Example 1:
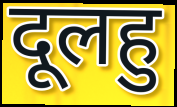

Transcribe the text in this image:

दूलहु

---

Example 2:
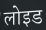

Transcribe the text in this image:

लोइड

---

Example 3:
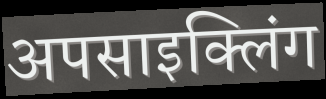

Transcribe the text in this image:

अपसाइक्लिंग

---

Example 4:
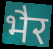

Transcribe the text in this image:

भैर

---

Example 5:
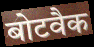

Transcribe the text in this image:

बोटवैक